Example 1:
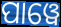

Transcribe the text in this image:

ପାୱେ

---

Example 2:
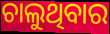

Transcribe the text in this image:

ଚାଲୁଥିବାର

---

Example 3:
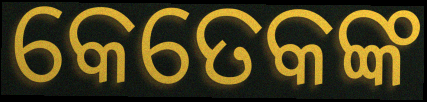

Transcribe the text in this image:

କେତେକଙ୍କ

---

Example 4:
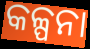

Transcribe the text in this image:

କଳ୍ପନା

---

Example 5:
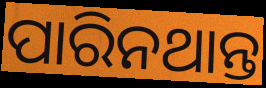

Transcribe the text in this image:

ପାରିନଥାନ୍ତ